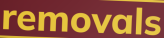
removals